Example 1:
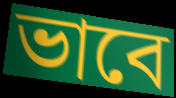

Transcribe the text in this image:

ভাবে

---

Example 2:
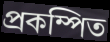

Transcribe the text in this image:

প্রকম্পিত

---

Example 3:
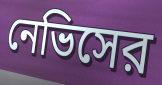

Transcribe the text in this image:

নেভিসের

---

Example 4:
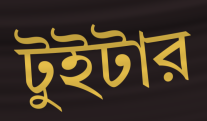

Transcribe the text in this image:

টুইটার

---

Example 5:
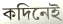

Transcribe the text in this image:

কদিনেই